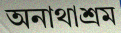
অনাথাশ্রম